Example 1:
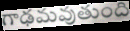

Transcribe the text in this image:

గాఢమవుతుంది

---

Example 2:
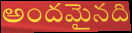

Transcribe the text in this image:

అందమైనది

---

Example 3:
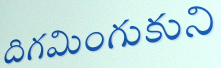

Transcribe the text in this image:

దిగమింగుకుని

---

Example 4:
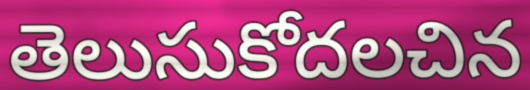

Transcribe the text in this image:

తెలుసుకోదలచిన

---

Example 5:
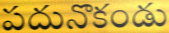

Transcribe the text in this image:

పదునొకండు